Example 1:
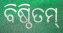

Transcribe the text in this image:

ବିଷ୍ଠିତମ୍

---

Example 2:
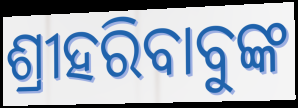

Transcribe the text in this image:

ଶ୍ରୀହରିବାବୁଙ୍କ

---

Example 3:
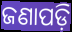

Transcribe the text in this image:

ଜଣାପଡ଼ି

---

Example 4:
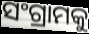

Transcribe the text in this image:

ସଂଗ୍ରାମକୁ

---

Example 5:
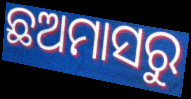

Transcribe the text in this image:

ଛଅମାସରୁ